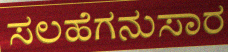
ಸಲಹೆಗನುಸಾರ